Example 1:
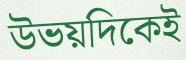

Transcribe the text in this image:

উভয়দিকেই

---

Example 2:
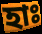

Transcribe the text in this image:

হাঃ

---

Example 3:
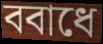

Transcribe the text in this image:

ববাধে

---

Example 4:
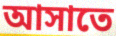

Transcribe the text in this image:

আসাতে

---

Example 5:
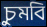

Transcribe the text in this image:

চুমবি